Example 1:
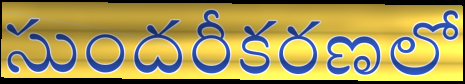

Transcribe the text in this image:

సుందరీకరణలో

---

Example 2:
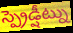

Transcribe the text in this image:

స్ప్రెడ్షీట్ను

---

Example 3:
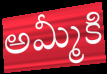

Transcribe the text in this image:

అమ్మీకి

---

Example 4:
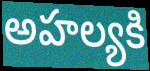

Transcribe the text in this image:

అహల్యకి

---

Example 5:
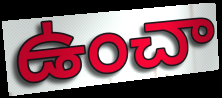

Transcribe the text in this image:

ఉంచా